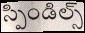
స్పిండిల్స్